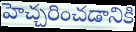
హెచ్చరించడానికి